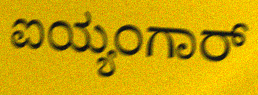
ಐಯ್ಯಂಗಾರ್